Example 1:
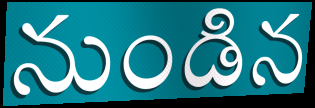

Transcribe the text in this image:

నుండిన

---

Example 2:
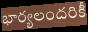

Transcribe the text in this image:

భార్యలందరికీ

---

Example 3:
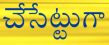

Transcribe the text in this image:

చేసేట్టుగా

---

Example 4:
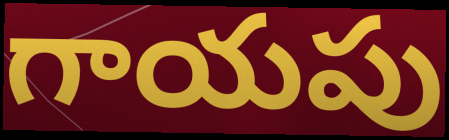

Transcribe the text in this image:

గాయపు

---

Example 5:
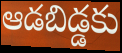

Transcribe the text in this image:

ఆడబిడ్డకు